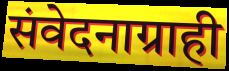
संवेदनाग्राही